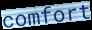
comfort